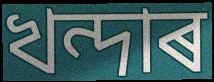
খন্দাৰ